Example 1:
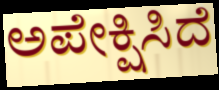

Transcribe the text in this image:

ಅಪೇಕ್ಷಿಸಿದೆ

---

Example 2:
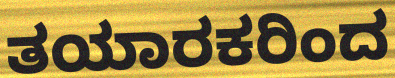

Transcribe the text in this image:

ತಯಾರಕರಿಂದ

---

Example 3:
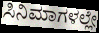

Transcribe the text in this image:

ಸಿನಿಮಾಗಳಲ್ಲೇ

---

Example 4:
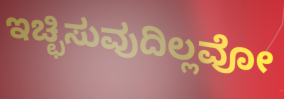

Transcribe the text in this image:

ಇಚ್ಛಿಸುವುದಿಲ್ಲವೋ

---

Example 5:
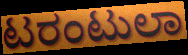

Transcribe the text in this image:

ಟರಂಟುಲಾ